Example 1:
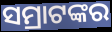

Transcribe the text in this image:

ସମ୍ରାଟଙ୍କର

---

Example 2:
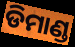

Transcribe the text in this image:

ଡିମାଣ୍ଡ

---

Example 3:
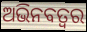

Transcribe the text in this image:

ଅଭିନବତ୍ୱର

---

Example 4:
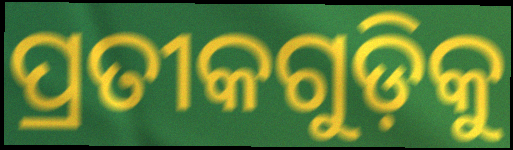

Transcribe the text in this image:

ପ୍ରତୀକଗୁଡ଼ିକୁ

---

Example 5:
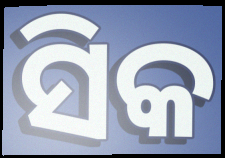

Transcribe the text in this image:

ସିକ